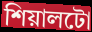
শিয়ালটো